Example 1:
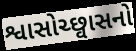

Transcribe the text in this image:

શ્વાસોચ્છ્વાસનો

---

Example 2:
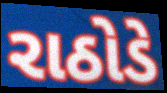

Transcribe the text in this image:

રાઠોડે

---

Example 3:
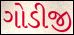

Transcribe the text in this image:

ગોડીજી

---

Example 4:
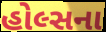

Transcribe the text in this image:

હોલ્સના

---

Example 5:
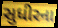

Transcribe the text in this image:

સુધીરના